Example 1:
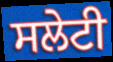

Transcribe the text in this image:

ਸਲੇਟੀ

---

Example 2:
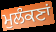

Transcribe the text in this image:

ਮੁਲੰਕਣਾਂ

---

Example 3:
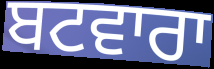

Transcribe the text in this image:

ਬਟਵਾਰਾ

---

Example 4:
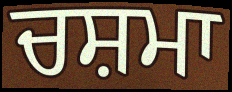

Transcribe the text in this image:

ਚਸ਼ਮਾ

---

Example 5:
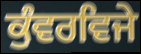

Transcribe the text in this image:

ਕੁੰਵਰਵਿਜੇ